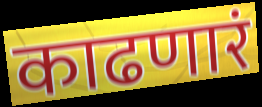
काढणारं